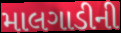
માલગાડીની